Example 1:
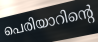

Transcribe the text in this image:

പെരിയാറിന്റെ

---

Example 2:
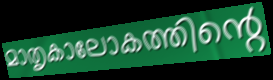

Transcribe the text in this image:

മാതൃകാലോകത്തിന്റെ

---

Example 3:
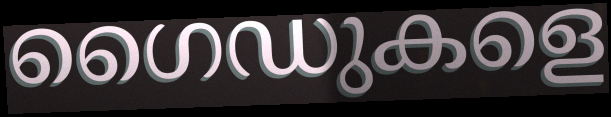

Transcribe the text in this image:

ഗൈഡുകളെ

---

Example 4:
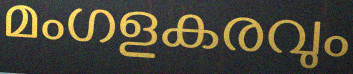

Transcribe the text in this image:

മംഗളകരവും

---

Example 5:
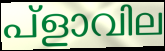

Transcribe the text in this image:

പ്ളാവില